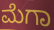
ಮೆಗಾ